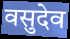
वसुदेव